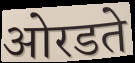
ओरडते